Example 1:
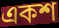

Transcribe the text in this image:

একশ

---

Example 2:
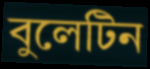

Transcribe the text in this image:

বুলেটিন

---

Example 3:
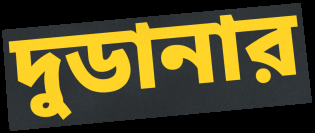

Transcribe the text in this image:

দুডানার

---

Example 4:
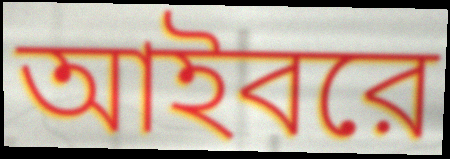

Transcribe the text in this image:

আইবরে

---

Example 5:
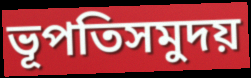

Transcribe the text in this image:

ভূপতিসমুদয়